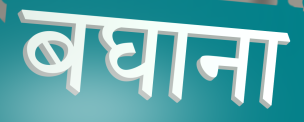
बघाना